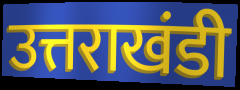
उत्तराखंडी